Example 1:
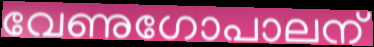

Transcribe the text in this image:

വേണുഗോപാലന്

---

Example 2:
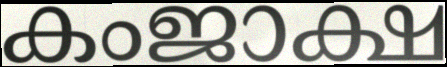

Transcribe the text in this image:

കംജാക്ഷ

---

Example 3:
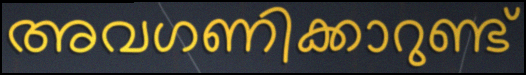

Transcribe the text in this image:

അവഗണിക്കാറുണ്ട്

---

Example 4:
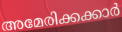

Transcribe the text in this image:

അമേരിക്കക്കാർ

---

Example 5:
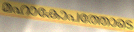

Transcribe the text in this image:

മഹാകോപത്തോടെ